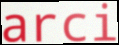
arci